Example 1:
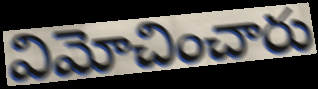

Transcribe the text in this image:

విమోచించారు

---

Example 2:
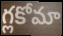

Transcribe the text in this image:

గ్లకోమా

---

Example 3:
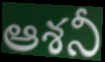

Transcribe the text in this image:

ఆశనీ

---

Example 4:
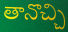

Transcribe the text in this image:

తానొచ్చి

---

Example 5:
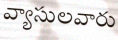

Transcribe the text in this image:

వ్యాసులవారు